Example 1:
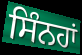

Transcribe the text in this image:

ਸਿੰਨਹਾਂ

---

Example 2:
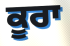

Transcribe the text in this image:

ਕੂਰਾ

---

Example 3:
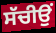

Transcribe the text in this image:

ਸੱਚੀਉਂ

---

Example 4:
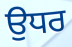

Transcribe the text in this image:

ਉਧਰ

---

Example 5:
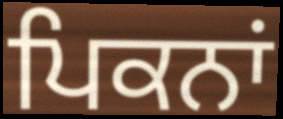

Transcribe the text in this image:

ਪਿਕਨਾਂ